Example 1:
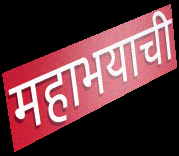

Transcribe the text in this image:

महाभयाची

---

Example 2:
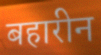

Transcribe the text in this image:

बहारीन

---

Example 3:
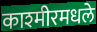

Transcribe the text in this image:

काश्‍मीरमधले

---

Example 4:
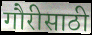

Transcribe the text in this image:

गौरीसाठी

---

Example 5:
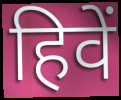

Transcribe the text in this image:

हिवें